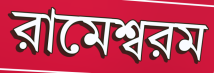
রামেশ্বরম